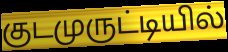
குடமுருட்டியில்